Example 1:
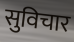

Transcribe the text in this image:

सुविचार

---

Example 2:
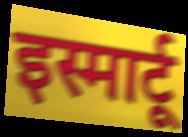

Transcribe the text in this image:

इस्मार्टू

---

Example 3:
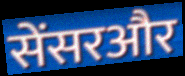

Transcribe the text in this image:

सेंसरऔर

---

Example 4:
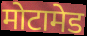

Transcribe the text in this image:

मोटामेड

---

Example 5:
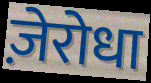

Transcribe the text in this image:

ज़ेरोधा